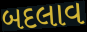
બદલાવ